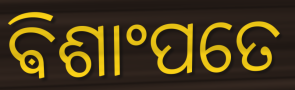
ଵିଶାଂପତେ